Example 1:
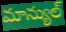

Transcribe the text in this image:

మాన్యుల్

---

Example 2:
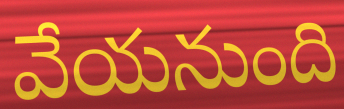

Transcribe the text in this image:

వేయనుంది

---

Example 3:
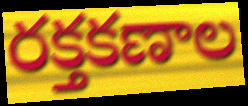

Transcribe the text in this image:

రక్తకణాల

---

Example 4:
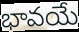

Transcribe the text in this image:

భావయే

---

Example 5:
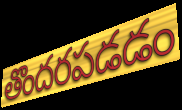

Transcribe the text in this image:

తొందరపడడం